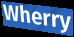
Wherry